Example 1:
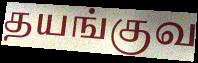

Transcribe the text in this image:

தயங்குவ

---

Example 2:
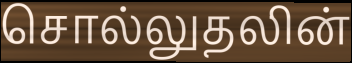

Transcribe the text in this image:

சொல்லுதலின்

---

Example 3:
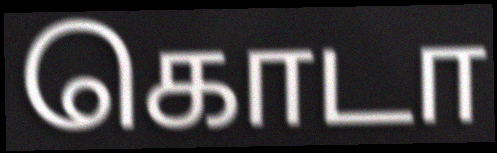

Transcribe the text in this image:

கொடா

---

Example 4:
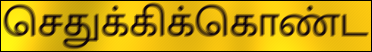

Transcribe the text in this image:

செதுக்கிக்கொண்ட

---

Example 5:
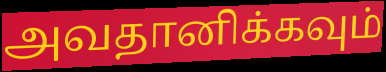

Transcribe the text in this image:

அவதானிக்கவும்